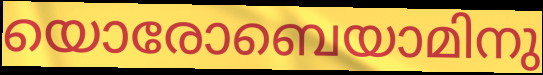
യൊരോബെയാമിനു